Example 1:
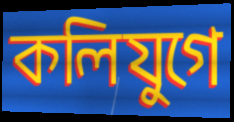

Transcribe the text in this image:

কলিযুগে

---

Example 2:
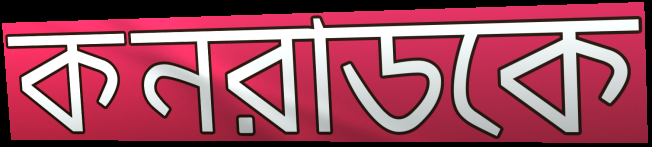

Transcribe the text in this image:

কনরাডকে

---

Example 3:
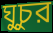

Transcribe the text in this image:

ঘুচুর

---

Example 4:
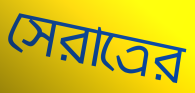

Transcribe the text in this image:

সেরাত্রের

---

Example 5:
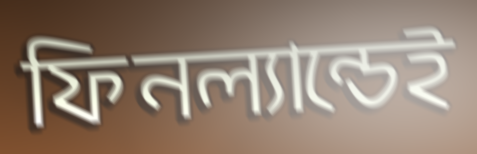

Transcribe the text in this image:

ফিনল্যান্ডেই